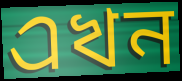
এখন